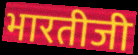
भारतीजी